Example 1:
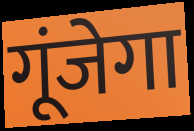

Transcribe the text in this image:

गूंजेगा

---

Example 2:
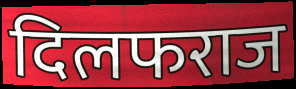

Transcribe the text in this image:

दिलफराज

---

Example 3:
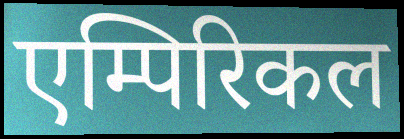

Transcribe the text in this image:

एम्पिरिकल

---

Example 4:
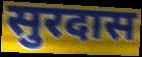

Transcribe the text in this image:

सुरदास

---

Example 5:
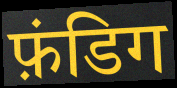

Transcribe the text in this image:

फ़ंडिग